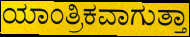
ಯಾಂತ್ರಿಕವಾಗುತ್ತಾ